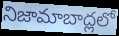
నిజామాబాద్లలో